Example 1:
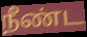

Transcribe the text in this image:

நீண்ட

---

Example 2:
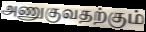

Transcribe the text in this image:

அணுகுவதற்கும்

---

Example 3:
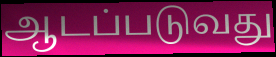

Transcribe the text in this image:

ஆடப்படுவது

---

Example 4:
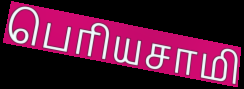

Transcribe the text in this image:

பெரியசாமி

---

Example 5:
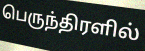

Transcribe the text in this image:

பெருந்திரளில்